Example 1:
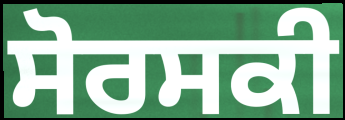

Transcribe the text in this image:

ਸੋਰਸਕੀ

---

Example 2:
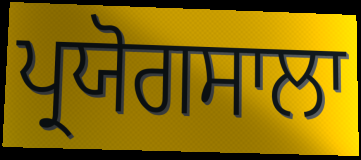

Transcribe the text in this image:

ਪ੍ਰਯੋਗਸਾਲਾ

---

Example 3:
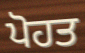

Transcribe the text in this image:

ਪੋਹਤ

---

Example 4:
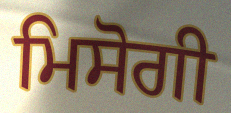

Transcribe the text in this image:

ਮਿਸੋਗੀ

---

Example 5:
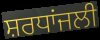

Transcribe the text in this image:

ਸ਼ਰਧਾਂਜਲੀ